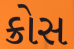
ક્રોસ